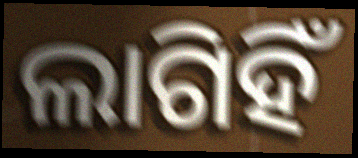
ଲାଗିହିଁ